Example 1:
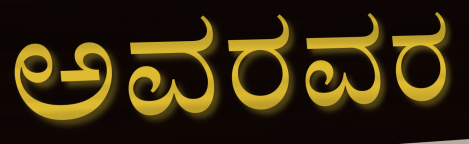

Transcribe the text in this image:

ಅವರವರ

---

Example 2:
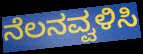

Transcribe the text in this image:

ನೆಲನವ್ವಳಿಸಿ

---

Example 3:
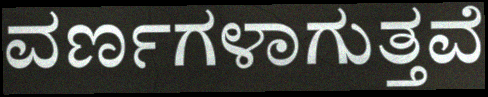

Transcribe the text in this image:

ವರ್ಣಗಳಾಗುತ್ತವೆ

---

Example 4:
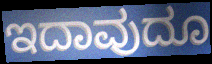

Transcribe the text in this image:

ಇದಾವುದೂ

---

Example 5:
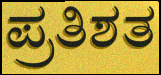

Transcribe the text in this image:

ಪ್ರತಿಶತ